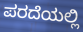
ಪರದೆಯಲ್ಲಿ